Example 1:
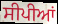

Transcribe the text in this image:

ਸੀਪੀਆਂ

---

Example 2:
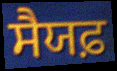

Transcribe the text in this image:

ਸੈਯਫ਼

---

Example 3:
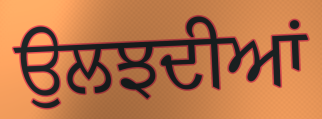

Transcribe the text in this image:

ਉਲਝਦੀਆਂ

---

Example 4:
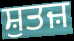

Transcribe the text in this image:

ਸ਼ੁਤਜ਼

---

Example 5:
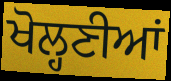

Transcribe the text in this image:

ਖੋਲ੍ਹਣੀਆਂ